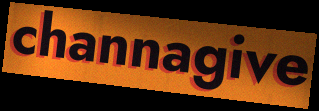
channagive